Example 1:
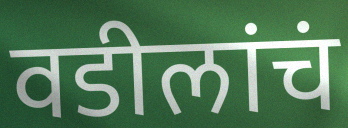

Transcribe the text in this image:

वडीलांचं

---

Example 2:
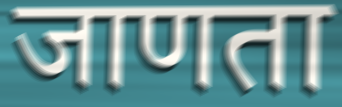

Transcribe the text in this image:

जाणता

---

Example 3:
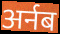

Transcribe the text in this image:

अर्नब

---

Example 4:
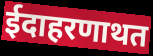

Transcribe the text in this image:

ईदाहरणाथत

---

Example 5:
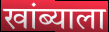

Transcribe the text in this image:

खांब्याला